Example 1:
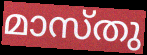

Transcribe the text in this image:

മാസ്തു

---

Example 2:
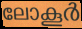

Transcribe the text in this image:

ലോകൂർ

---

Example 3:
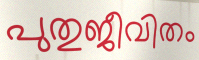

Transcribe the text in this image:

പുതുജീവിതം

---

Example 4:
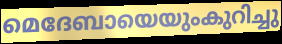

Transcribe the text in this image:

മെദേബായെയുംകുറിച്ചു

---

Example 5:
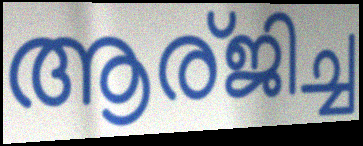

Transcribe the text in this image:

ആര്ജിച്ച